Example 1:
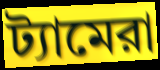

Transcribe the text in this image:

ট্যামেরা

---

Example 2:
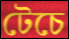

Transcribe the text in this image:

টেচে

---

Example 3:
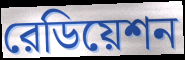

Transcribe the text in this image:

রেডিয়েশন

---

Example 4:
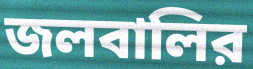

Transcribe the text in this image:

জলবালির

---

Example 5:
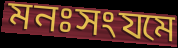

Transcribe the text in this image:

মনঃসংযমে